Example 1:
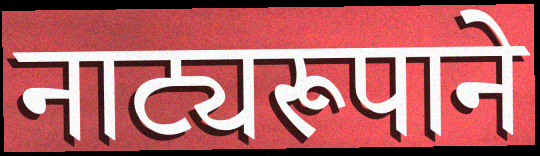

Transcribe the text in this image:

नाट्यरूपाने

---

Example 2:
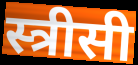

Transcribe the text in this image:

स्त्रीसी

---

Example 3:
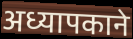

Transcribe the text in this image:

अध्यापकाने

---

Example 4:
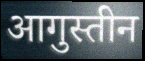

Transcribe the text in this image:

आगुस्तीन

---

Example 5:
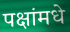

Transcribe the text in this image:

पक्षांमधे